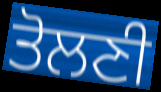
ਤੋਲਣੀ